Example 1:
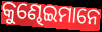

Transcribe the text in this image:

କୁଣ୍ଢେଇମାନେ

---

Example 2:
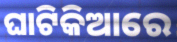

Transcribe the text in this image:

ଘାଟିକିଆରେ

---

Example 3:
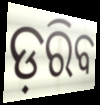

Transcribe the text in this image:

ଡ଼ରିବ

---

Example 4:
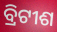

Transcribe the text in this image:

ବ୍ରିଟୀଶ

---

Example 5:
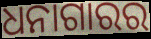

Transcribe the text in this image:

ଧନାଗାରର